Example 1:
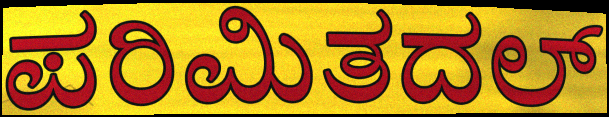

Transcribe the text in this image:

ಪರಿಮಿತದಲ್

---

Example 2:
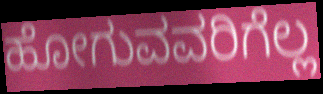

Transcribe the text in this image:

ಹೋಗುವವರಿಗೆಲ್ಲ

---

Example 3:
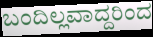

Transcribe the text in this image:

ಬಂದಿಲ್ಲವಾದ್ದರಿಂದ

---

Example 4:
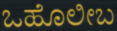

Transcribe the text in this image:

ಒಹೊಲೀಬ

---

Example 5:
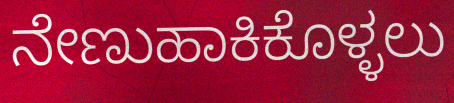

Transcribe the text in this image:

ನೇಣುಹಾಕಿಕೊಳ್ಳಲು